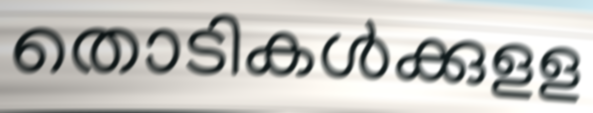
തൊടികൾക്കുളള